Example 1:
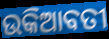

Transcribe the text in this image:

ଉକିଆବତୀ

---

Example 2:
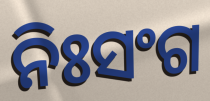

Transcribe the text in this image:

ନିଃସଂଗ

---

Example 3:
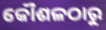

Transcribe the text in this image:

କୌଶଳଠାରୁ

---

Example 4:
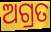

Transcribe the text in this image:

ଅଗ୍ରତ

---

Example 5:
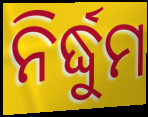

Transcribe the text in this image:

ନିର୍ଦ୍ଧୁମ